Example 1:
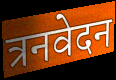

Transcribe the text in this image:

त्रनवेदन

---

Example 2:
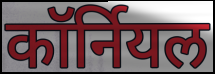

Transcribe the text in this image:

कॉर्नियल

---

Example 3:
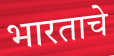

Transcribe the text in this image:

भारताचे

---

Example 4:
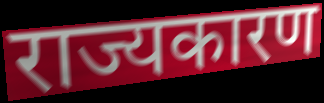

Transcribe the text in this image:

राज्यकारण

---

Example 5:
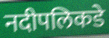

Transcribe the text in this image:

नदीपलिकडे